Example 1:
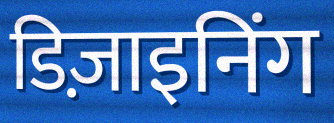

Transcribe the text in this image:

डिज़ाइनिंग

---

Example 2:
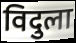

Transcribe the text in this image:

विदुला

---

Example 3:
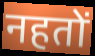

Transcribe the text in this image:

नहतों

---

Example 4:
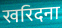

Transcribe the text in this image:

खरिदना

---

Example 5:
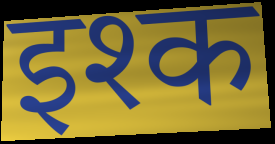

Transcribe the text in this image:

इश्क